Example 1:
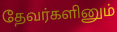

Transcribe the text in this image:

தேவர்களினும்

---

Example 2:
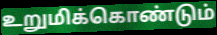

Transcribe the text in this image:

உறுமிக்கொண்டும்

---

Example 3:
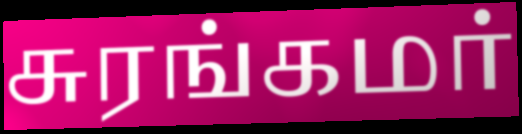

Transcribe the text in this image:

சுரங்கமர்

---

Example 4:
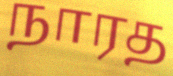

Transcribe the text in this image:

நாரத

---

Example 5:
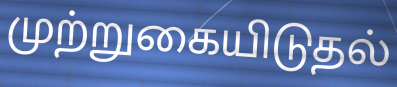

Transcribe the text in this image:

முற்றுகையிடுதல்